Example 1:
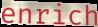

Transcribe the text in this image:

enrich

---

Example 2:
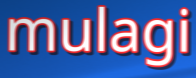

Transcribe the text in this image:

mulagi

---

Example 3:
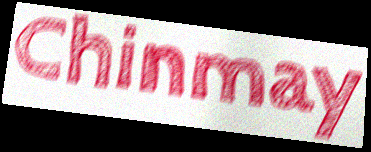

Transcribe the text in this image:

Chinmay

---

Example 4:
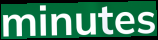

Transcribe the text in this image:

minutes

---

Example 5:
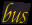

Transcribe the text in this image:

bus